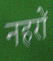
नहरों